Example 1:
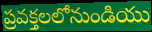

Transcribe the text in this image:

ప్రవక్తలలోనుండియు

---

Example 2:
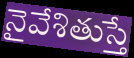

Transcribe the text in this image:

నైవేశితుస్తే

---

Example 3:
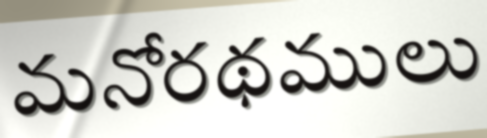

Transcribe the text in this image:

మనోరథములు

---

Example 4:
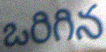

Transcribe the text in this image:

ఒరిగిన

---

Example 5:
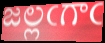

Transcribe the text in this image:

జల్లఁగాఁ